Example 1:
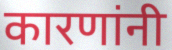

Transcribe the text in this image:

कारणांनी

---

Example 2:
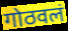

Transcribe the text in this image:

गोठवलं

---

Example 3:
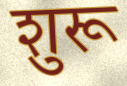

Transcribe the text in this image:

शुरू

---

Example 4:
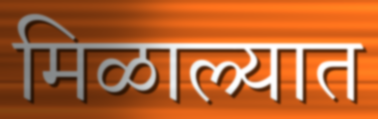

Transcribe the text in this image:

मिळाल्यात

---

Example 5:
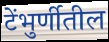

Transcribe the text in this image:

टेंभुर्णीतील